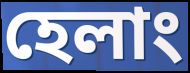
হেলাং